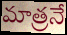
మాత్రనే